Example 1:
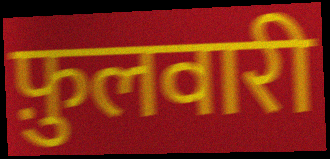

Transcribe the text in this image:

फ़ुलवारी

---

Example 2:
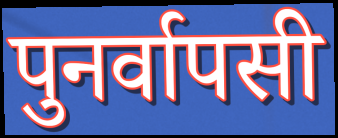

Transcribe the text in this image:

पुनर्वापसी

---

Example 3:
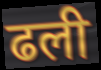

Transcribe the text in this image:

ढली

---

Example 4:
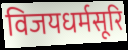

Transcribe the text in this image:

विजयधर्मसूरि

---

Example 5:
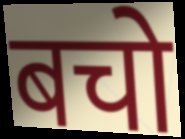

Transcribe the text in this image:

बचो